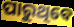
ପାରୁଥିବେ